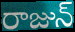
రాజున్